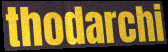
thodarchi